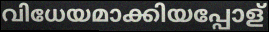
വിധേയമാക്കിയപ്പോള്